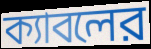
ক্যাবলের